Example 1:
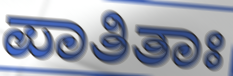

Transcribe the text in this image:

ಪಾತಿತಾಃ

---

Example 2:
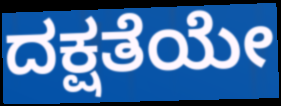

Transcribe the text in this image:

ದಕ್ಷತೆಯೇ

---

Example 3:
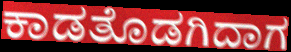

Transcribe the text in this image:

ಕಾಡತೊಡಗಿದಾಗ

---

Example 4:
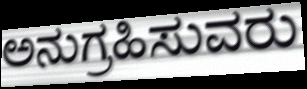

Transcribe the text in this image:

ಅನುಗ್ರಹಿಸುವರು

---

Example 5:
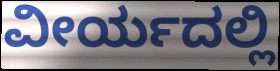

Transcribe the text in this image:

ವೀರ್ಯದಲ್ಲಿ